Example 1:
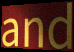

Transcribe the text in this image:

and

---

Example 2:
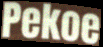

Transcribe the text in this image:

Pekoe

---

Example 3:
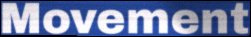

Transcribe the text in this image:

Movement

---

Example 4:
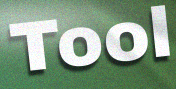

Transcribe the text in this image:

Tool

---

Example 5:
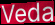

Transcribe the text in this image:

Veda